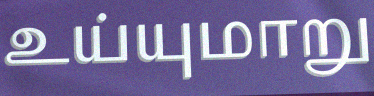
உய்யுமாறு